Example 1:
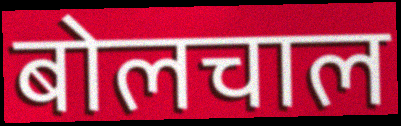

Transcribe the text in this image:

बोलचाल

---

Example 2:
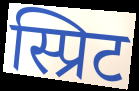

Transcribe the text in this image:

स्प्रिट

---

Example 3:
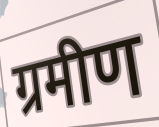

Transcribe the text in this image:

ग्रमीण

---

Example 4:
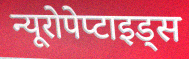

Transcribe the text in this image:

न्यूरोपेप्टाइड्स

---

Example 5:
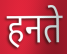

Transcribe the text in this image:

हनते